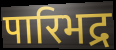
पारिभद्र